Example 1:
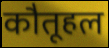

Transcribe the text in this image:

कौतूहल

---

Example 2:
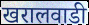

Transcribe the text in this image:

खरालवाडी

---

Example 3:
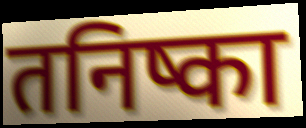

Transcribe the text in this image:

तनिष्का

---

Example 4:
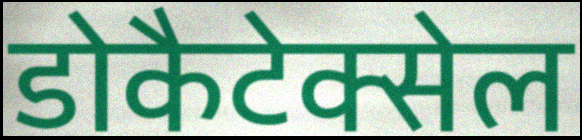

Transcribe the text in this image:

डोकैटेक्सेल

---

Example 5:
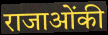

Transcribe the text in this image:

राजाओंकी